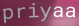
priyaa